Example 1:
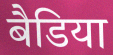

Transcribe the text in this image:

बैडिया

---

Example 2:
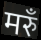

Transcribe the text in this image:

मरुँ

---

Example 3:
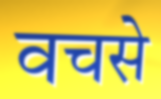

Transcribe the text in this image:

वचसे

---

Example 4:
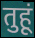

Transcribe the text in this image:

तुहूं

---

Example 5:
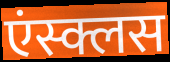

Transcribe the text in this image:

एंस्क्लस